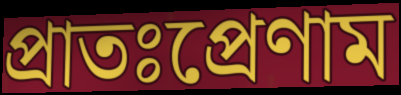
প্রাতঃপ্রেণাম